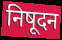
निषूदन